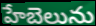
హేబెలును